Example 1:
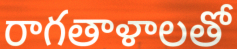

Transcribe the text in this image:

రాగతాళాలతో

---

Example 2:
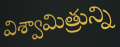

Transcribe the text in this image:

విశ్వామిత్రున్ని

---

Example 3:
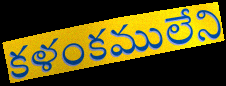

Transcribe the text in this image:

కళంకములేని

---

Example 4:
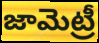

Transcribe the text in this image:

జామెట్రీ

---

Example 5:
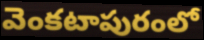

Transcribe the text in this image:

వెంకటాపురంలో